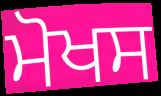
ਮੋਖਸ